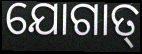
ଯୋଗାତ୍